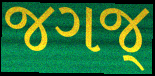
જગજ્